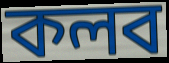
কলব